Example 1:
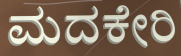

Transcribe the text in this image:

ಮದಕೇರಿ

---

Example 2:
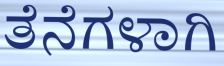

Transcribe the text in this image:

ತೆನೆಗಳಾಗಿ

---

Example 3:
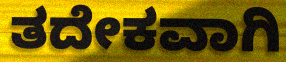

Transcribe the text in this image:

ತದೇಕವಾಗಿ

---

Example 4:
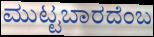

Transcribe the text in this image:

ಮುಟ್ಟಬಾರದೆಂಬ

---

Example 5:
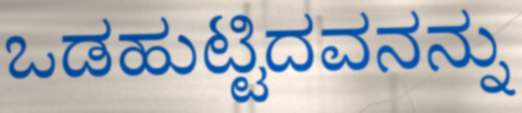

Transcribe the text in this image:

ಒಡಹುಟ್ಟಿದವನನ್ನು